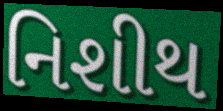
નિશીથ